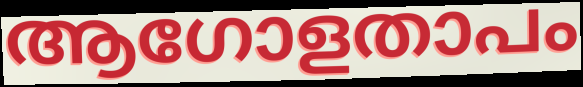
ആഗോളതാപം